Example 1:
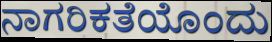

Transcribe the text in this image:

ನಾಗರಿಕತೆಯೊಂದು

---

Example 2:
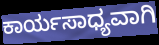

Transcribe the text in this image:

ಕಾರ್ಯಸಾಧ್ಯವಾಗಿ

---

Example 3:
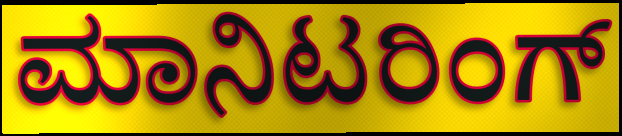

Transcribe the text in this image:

ಮಾನಿಟರಿಂಗ್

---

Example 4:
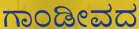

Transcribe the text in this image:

ಗಾಂಡೀವದ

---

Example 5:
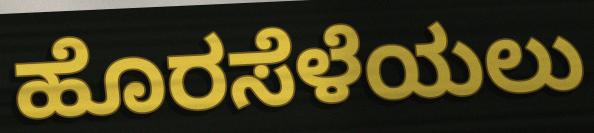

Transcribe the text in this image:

ಹೊರಸೆಳೆಯಲು